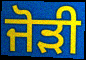
ਜੋਡ਼ੀ